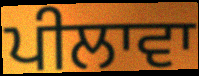
ਪੀਲਾਵਾ